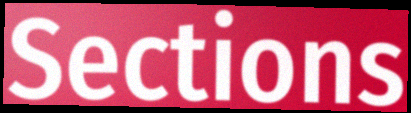
Sections